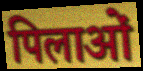
पिलाओं